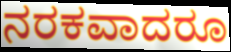
ನರಕವಾದರೂ